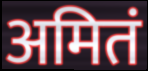
अमितं